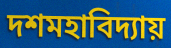
দশমহাবিদ্যায়